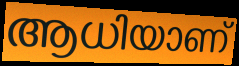
ആധിയാണ്